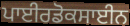
ਪਾਈਰਡੋਕਸਾਈਨ